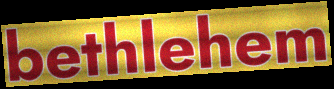
bethlehem